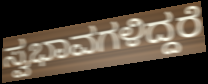
ಸ್ವಭಾವಗಳಿದ್ದರೆ